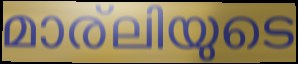
മാര്ലിയുടെ